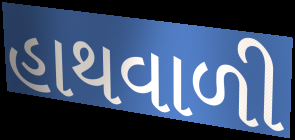
હાથવાળી